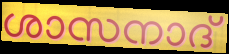
ശാസനാദ്